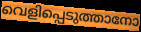
വെളിപ്പെടുത്താനോ